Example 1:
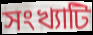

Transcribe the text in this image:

সংখ্যাটি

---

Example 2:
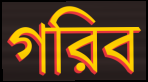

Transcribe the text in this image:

গরিব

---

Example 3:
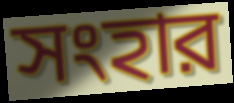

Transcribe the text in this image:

সংহার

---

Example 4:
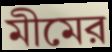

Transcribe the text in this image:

মীমের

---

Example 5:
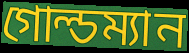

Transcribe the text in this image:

গোল্ডম্যান